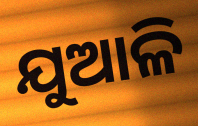
ଯୁଆଳି